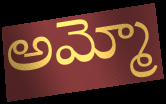
అమ్మో